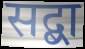
सद्बा